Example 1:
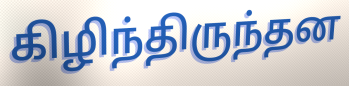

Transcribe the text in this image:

கிழிந்திருந்தன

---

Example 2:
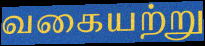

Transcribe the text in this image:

வகையற்று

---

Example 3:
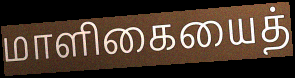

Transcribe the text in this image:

மாளிகையைத்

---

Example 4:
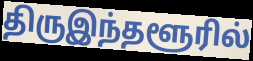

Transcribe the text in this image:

திருஇந்தளூரில்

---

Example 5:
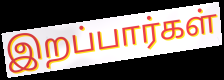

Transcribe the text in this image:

இறப்பார்கள்